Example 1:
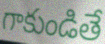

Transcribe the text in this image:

గాకుండితే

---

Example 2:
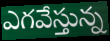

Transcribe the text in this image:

ఎగవేస్తున్న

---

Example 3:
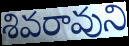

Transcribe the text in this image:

శివరావుని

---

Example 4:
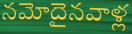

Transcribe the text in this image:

నమోదైనవాళ్ల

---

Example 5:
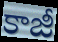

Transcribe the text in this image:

కాజీ